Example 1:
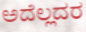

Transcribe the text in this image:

ಅದೆಲ್ಲದರ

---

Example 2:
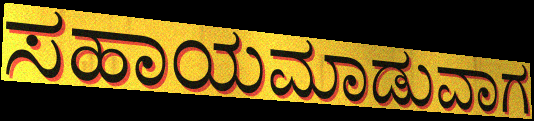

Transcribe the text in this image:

ಸಹಾಯಮಾಡುವಾಗ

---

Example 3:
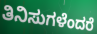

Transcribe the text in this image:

ತಿನಿಸುಗಳೆಂದರೆ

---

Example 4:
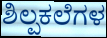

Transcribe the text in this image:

ಶಿಲ್ಪಕಲೆಗಳ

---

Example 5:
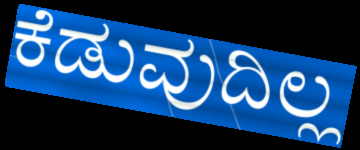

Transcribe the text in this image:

ಕೆಡುವುದಿಲ್ಲ